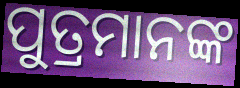
ପୁତ୍ରମାନଙ୍କ